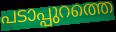
പടാപ്പുറത്തെ